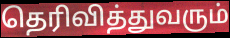
தெரிவித்துவரும்